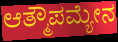
ಆತ್ಮೌಪಮ್ಯೇನ